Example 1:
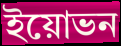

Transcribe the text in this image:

ইয়োভন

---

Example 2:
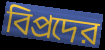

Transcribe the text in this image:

বিপ্রদের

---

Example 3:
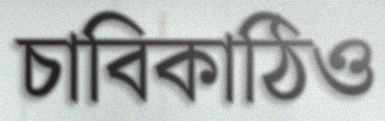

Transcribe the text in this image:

চাবিকাঠিও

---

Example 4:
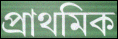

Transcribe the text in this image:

প্রাথমিক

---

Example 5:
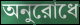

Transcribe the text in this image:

অনুরোধে